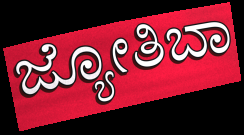
ಜ್ಯೋತಿಬಾ